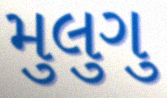
મુલુગુ